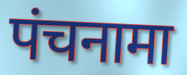
पंचनामा